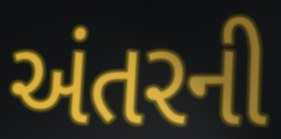
અંતરની